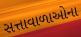
સત્તાવાળાઓના